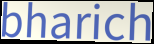
bharich